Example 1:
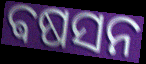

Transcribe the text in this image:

ଵଷସନ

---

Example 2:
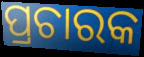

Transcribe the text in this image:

ପ୍ରଚାରକ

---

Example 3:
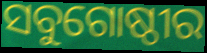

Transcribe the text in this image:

ସବୁଗୋଷ୍ଠୀର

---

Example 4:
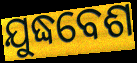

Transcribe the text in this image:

ଯୁଦ୍ଧବେଶ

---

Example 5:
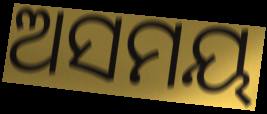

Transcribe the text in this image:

ଅସମୟ